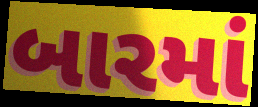
બારમાં